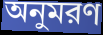
অনুমরণ